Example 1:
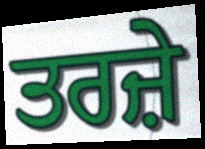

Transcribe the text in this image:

ਤਰਜ਼ੇ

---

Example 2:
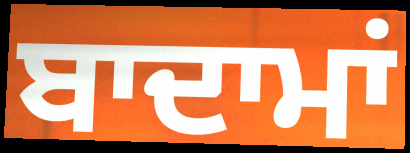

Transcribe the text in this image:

ਬਾਦਾਮਾਂ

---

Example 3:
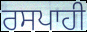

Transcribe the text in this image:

ਰਸਪਾਹੀ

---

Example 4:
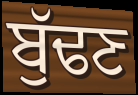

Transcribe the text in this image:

ਬੁੱਢਣ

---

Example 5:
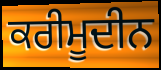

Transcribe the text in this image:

ਕਰੀਮੂਦੀਨ